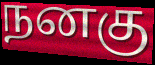
நனகு